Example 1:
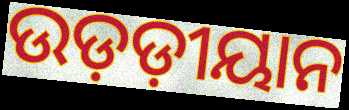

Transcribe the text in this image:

ଉଡ଼ଡ଼ୀୟାନ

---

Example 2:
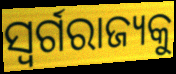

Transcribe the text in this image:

ସ୍ଵର୍ଗରାଜ୍ୟକୁ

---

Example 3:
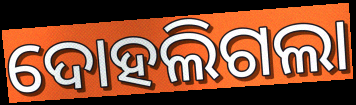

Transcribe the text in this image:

ଦୋହଲିଗଲା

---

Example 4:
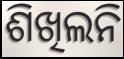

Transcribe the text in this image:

ଶିଖିଲନି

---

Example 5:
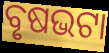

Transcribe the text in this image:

ବୃଷଭଟା